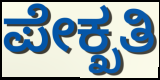
ಪೇಕ್ಖತಿ